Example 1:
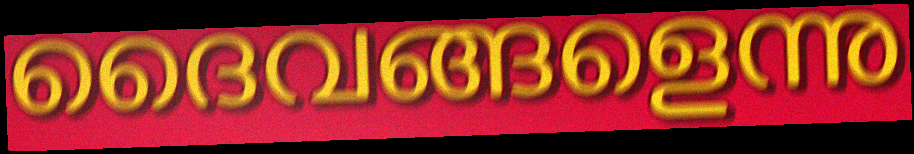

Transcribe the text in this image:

ദൈവങ്ങളെന്നു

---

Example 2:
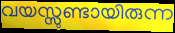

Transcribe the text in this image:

വയസ്സുണ്ടായിരുന്ന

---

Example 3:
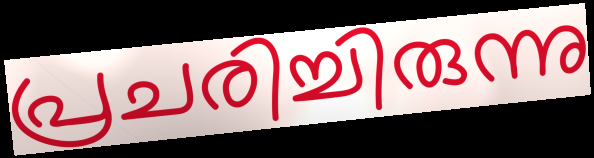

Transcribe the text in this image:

പ്രചരിച്ചിരുന്നു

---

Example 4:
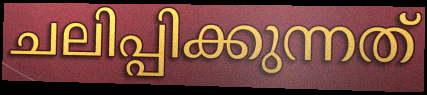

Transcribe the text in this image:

ചലിപ്പിക്കുന്നത്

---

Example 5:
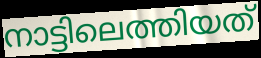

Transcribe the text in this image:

നാട്ടിലെത്തിയത്